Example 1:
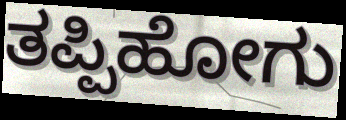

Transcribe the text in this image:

ತಪ್ಪಿಹೋಗು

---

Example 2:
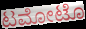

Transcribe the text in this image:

ಟಮೋಟೊ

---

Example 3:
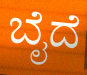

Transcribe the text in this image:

ಬೈದೆ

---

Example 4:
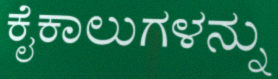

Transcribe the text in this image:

ಕೈಕಾಲುಗಳನ್ನು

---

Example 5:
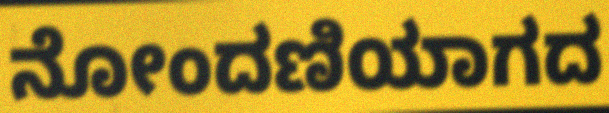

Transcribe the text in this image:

ನೋಂದಣಿಯಾಗದ